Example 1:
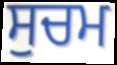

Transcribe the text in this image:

ਸੁਚਮ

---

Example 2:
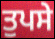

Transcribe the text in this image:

ਤੁਪਸੇ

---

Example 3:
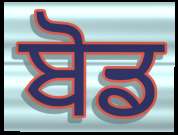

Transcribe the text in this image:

ਬੋਡ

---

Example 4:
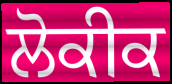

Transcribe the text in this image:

ਲੋਕੀਕ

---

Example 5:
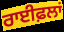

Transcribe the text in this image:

ਰਾਈਫ਼ਲਾਂ